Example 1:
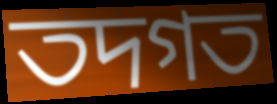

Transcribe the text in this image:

তদগত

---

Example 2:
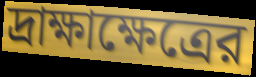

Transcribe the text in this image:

দ্রাক্ষাক্ষেত্রের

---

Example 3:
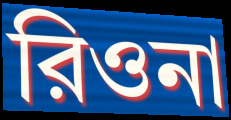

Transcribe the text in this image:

রিওনা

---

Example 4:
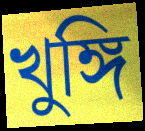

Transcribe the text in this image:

খুঙ্গি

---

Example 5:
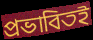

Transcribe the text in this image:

প্রভাবিতই